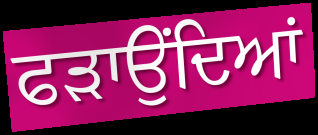
ਫੜਾਉਂਦਿਆਂ